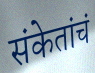
संकेतांचं